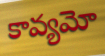
కావ్యమో